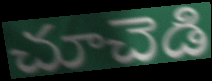
చూచెడి